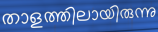
താളത്തിലായിരുന്നു